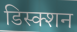
डिस्क्शन